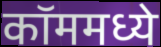
कॉममध्ये